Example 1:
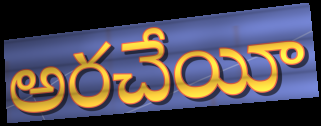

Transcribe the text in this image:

అరచేయీ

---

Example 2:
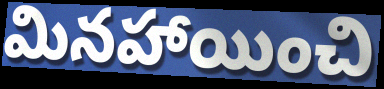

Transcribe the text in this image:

మినహాయించి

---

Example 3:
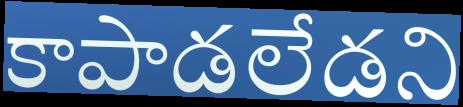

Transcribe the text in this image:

కాపాడలేడని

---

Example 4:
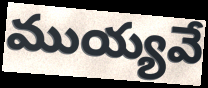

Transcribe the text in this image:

ముయ్యవే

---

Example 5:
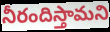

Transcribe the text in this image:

నీరందిస్తామని